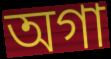
অগা